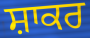
ਸ਼ਾਕਰ